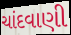
ચાંદવાણી